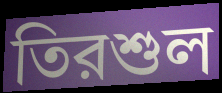
তিরশুল